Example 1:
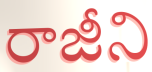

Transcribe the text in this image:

రాజీని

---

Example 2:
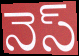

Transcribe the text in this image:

నెస్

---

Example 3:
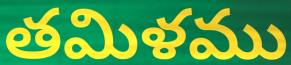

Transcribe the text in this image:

తమిళము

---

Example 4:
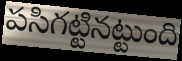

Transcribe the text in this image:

పసిగట్టినట్టుంది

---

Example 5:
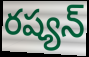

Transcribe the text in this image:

రష్యన్